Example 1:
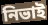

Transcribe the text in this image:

নিভাই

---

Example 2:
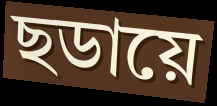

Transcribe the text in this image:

ছডায়ে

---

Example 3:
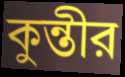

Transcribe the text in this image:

কুন্তীর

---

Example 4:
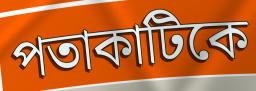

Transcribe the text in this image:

পতাকাটিকে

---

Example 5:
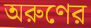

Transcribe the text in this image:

অরুণের